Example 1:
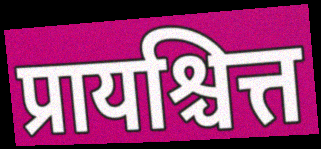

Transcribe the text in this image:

प्रायश्चित्त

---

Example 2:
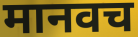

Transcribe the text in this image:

मानवच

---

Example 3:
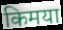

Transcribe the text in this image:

किमया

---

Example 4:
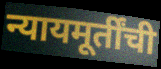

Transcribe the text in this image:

न्यायमूर्तींची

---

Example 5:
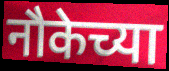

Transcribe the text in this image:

नौकेच्या